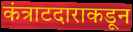
कंत्राटदाराकडून